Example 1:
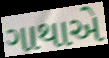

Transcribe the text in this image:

ગાથાએ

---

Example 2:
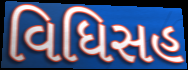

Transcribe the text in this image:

વિધિસહ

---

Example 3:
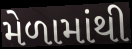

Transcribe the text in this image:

મેળામાંથી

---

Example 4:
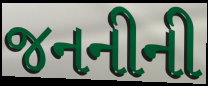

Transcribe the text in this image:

જનનીની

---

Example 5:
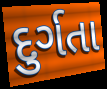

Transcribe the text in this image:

દુર્ગતા